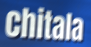
chitala